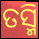
ତସ୍ମି